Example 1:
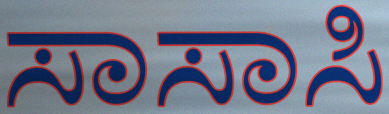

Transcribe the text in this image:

ಸಾಸಾಸಿ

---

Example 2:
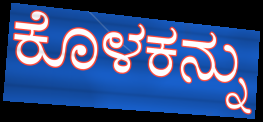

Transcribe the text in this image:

ಕೊಳಕನ್ನು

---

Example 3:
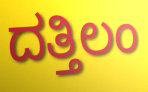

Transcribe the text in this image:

ದತ್ತಿಲಂ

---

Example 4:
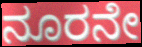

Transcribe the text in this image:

ನೂರನೇ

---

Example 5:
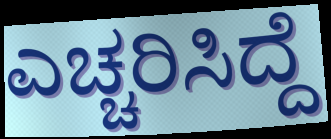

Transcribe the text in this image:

ಎಚ್ಚರಿಸಿದ್ದೆ